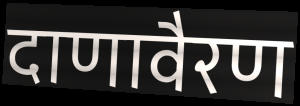
दाणावैरण